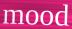
mood